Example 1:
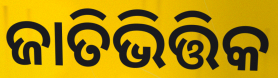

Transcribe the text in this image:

ଜାତିଭିତ୍ତିକ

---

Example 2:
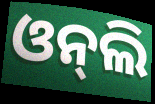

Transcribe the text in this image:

ଓନ୍‍ଲି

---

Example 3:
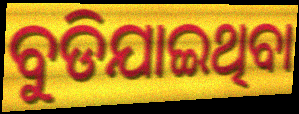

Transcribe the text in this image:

ବୁଡିଯାଇଥିବା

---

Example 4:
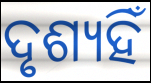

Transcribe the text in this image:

ଦୃଶ୍ୟହିଁ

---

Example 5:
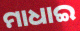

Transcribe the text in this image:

ମାଧାଇ